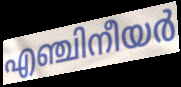
എഞ്ചിനീയർ